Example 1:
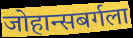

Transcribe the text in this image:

जोहान्सबर्गला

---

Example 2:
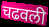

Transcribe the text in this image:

चढवली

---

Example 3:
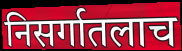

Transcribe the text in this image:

निसर्गातलाच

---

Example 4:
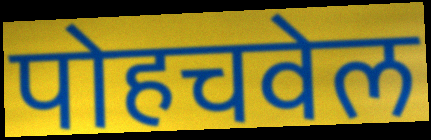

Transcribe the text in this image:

पोहचवेल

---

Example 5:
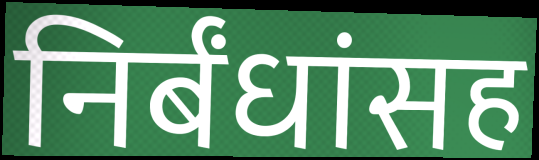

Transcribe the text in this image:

निर्बंधांसह